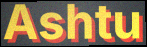
Ashtu